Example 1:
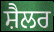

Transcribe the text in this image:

ਸ਼ੈਲਰ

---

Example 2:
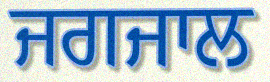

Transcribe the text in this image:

ਜਗਜਾਲ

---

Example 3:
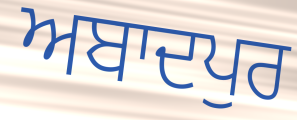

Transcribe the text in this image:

ਅਬਾਦਪੁਰ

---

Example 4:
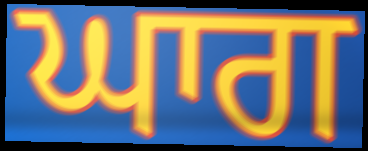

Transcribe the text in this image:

ਘਾਗ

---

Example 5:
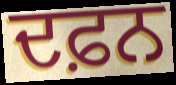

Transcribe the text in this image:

ਦਫ਼ਨ